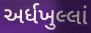
અર્ધખુલ્લાં